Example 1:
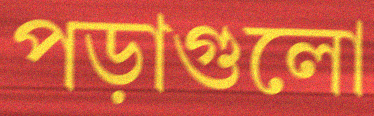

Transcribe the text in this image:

পড়াগুলো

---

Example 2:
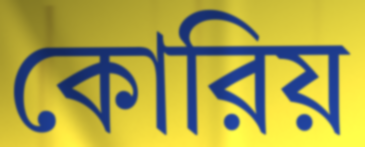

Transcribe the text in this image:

কোরিয়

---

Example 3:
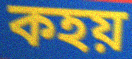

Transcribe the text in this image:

কহয়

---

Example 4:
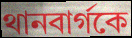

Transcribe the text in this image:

থানবার্গকে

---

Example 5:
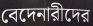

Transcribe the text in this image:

বেদেনারীদের